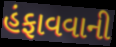
હંફાવવાની